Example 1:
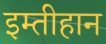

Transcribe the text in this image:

इम्तीहान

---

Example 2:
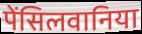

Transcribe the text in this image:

पेंसिलवानिया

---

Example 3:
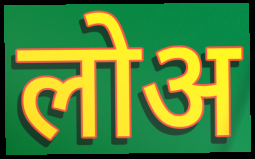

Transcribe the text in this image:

लोअ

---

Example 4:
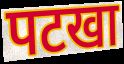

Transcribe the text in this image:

पटखा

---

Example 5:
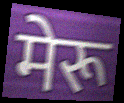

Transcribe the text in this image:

मेरू